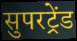
सुपरट्रेंड